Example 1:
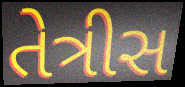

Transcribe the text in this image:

તેત્રીસ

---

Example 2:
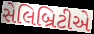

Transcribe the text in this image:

સેલિબ્રિટીએ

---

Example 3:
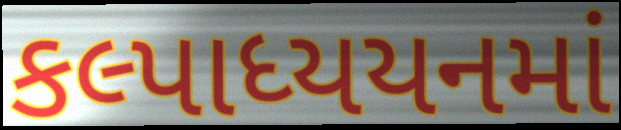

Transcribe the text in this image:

કલ્પાધ્યયનમાં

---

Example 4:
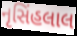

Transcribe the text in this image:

નૃસિંહલાલ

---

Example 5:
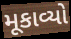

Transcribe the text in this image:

મૂકાવ્યો